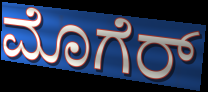
ಮೊಗೆರ್